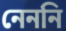
নেননি